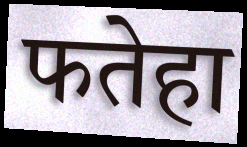
फतेहा